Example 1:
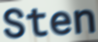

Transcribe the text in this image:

Sten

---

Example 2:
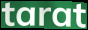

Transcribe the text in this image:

tarat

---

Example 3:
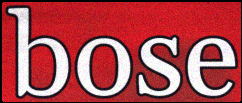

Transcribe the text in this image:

bose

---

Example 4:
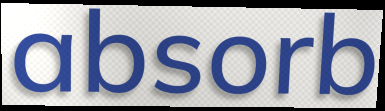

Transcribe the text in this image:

absorb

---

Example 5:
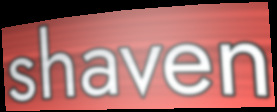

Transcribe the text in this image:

shaven